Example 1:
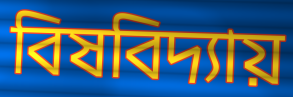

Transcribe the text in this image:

বিষবিদ্যায়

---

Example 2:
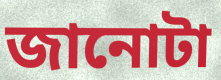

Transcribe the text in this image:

জানোটা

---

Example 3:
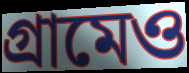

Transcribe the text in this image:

গ্রামেও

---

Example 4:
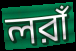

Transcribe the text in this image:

লরাঁ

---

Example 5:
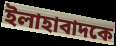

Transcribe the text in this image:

ইলাহাবাদকে